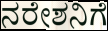
ನರೇಶನಿಗೆ